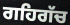
ਗਹਿਗੱਚ